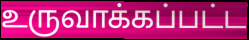
உருவாக்கப்பட்ட